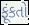
ફૂંકતો